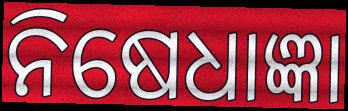
ନିଷେଧାଜ୍ଞା